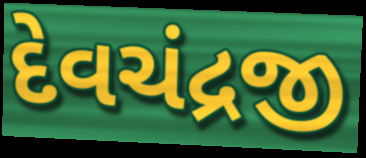
દેવચંદ્રજી